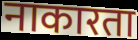
नाकारता